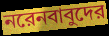
নরেনবাবুদের